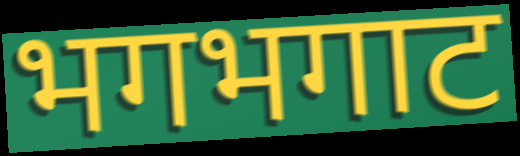
भगभगाट